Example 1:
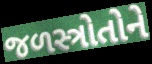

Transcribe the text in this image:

જળસ્ત્રોતોને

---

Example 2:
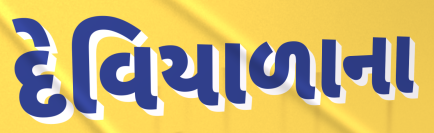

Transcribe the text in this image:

દેવિયાળાના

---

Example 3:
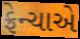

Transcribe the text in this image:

ફ્રેન્ચાએ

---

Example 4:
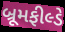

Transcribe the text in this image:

બ્રૂમફીલ્ડે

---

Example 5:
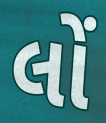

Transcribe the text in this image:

લોં